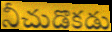
నీచుడొకడు